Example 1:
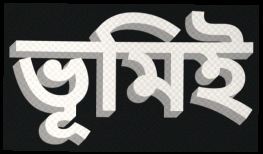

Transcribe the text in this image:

ভূমিই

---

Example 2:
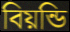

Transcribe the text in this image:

বিয়ন্ডি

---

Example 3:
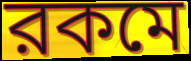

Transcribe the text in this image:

রকমে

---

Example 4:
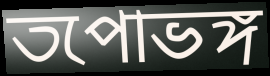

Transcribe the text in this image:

তপোভঙ্গ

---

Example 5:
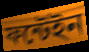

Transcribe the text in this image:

ফন্টেইন